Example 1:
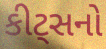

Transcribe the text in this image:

કીટ્સનો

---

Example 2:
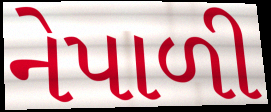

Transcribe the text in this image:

નેપાળી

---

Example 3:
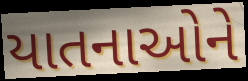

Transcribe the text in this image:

યાતનાઓને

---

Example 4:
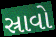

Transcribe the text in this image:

સ્રાવો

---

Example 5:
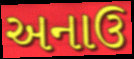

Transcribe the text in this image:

અનાઉ